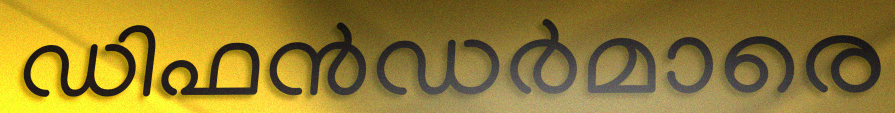
ഡിഫൻഡർമാരെ